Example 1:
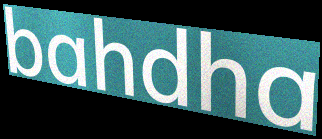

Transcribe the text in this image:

bahdha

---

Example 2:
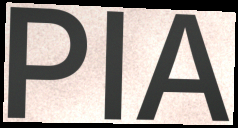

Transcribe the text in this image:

PIA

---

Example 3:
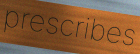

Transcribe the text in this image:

prescribes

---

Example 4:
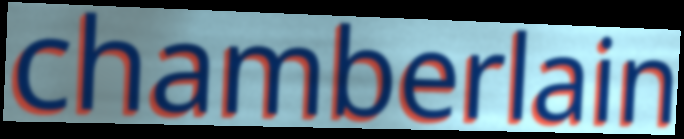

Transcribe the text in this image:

chamberlain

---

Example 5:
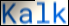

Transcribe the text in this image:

Kalk